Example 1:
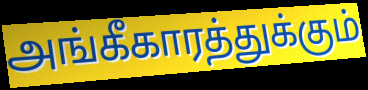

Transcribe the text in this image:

அங்கீகாரத்துக்கும்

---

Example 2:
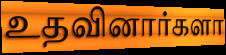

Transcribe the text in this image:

உதவினார்களா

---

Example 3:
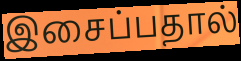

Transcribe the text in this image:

இசைப்பதால்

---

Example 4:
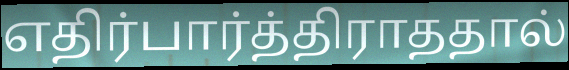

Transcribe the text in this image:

எதிர்பார்த்திராததால்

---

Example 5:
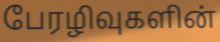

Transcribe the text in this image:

பேரழிவுகளின்